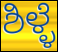
ಶಿಳ್ಳೆ